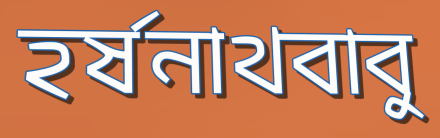
হর্ষনাথবাবু